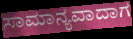
ಸಾಮಾನ್ಯವಾದಾಗ